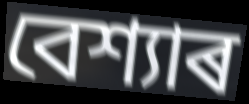
বেশ্যাৰ